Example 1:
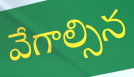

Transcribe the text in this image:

వేగాల్సిన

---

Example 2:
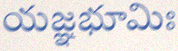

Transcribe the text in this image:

యజ్ఞభూమిః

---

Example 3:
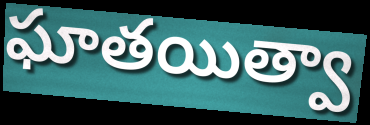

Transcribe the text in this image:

ఘాతయిత్వా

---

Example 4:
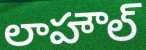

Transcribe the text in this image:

లాహౌల్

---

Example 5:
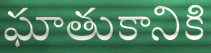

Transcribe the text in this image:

ఘాతుకానికి